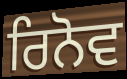
ਰਿਨੋਵ